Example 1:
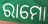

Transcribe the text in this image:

ରାମୋ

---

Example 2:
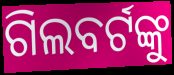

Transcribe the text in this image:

ଗିଲବର୍ଟଙ୍କୁ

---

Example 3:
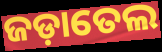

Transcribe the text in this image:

ଜଡ଼ାତେଲ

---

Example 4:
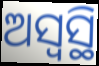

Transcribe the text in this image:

ଅସ୍ୱସ୍ଥି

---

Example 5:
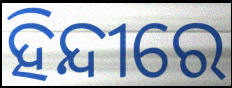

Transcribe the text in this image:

ହିନ୍ଦୀରେ